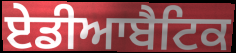
ਏਡੀਆਬੈਟਿਕ